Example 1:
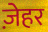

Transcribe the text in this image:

ज़ेहर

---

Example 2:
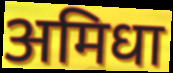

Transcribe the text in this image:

अमिधा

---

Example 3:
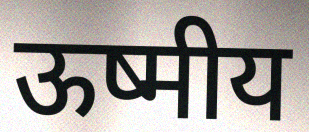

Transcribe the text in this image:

ऊष्मीय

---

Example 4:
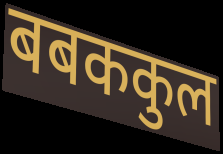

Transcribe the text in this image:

बबककुल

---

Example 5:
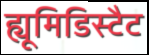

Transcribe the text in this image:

ह्यूमिडिस्टैट